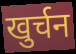
खुर्चन